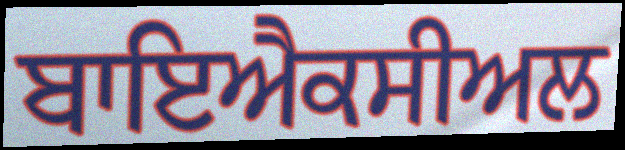
ਬਾਇਐਕਸੀਅਲ